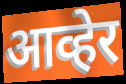
आव्हेर